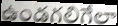
ఉండగలిగేలా